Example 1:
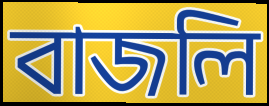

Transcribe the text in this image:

বাজলি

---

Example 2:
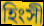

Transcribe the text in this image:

হিংসী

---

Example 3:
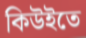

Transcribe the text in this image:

কিউইতে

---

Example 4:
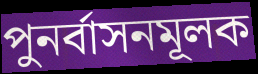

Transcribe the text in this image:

পুনর্বাসনমূলক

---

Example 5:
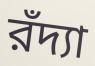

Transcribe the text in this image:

রঁদ্যা